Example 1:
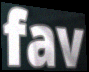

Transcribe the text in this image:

fav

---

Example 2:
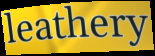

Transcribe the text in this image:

leathery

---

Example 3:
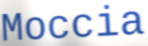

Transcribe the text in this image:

Moccia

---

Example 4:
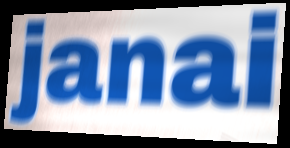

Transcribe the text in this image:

janai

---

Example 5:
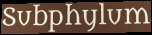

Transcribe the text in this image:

Subphylum